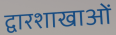
द्वारशाखाओं